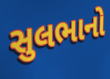
સુલભાનો